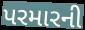
પરમારની